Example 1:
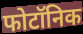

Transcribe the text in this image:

फोटॉनिक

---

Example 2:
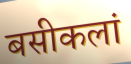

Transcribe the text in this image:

बसीकलां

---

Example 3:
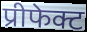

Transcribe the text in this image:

प्रीफेक्ट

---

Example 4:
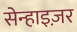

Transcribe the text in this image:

सेन्हाइज़र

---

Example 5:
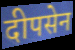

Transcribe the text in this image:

दीपसेन